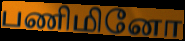
பணிமினோ